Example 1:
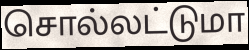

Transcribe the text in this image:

சொல்லட்டுமா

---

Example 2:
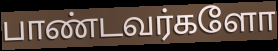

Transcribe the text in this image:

பாண்டவர்களோ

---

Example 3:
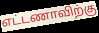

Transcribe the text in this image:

எட்டணாவிற்கு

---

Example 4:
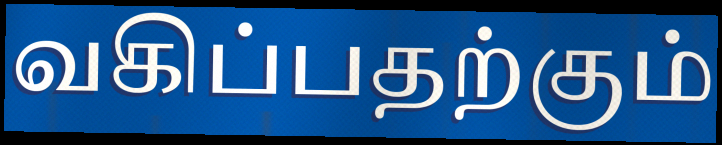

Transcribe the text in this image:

வகிப்பதற்கும்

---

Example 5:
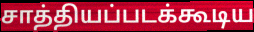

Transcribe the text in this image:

சாத்தியப்படக்கூடிய